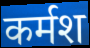
कर्मश